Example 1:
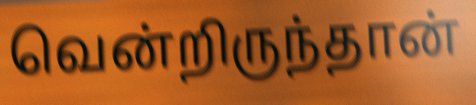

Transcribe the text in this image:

வென்றிருந்தான்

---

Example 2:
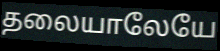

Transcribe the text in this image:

தலையாலேயே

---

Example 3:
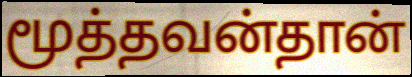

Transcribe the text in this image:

மூத்தவன்தான்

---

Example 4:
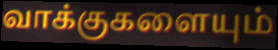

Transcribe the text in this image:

வாக்குகளையும்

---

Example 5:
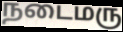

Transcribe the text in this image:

நடைமரு